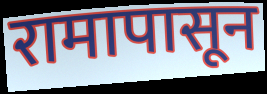
रामापासून